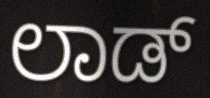
ಲಾಡ್